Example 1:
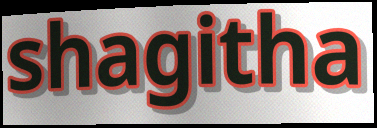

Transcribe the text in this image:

shagitha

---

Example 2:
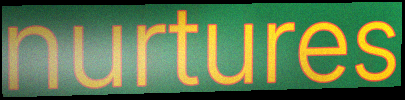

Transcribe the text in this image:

nurtures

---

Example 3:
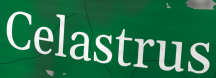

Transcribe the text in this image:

Celastrus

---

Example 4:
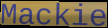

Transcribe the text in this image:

Mackie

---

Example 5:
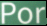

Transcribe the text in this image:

Por